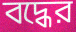
বদ্ধের